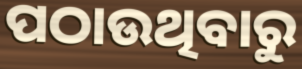
ପଠାଉଥିବାରୁ